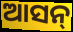
ଆସନ୍